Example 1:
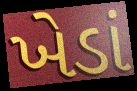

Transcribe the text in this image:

ખેડાં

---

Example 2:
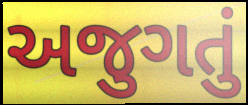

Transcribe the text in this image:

અજુગતું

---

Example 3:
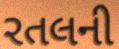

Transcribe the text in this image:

રતલની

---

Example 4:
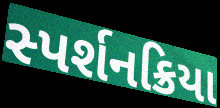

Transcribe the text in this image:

સ્પર્શનક્રિયા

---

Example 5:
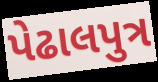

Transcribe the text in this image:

પેઢાલપુત્ર